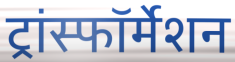
ट्रांस्फॉर्मेशन